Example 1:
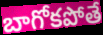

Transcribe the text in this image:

బాగోకపోతే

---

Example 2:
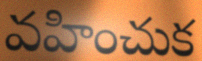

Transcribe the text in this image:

వహించుక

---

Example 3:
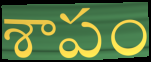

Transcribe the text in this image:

శాపం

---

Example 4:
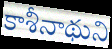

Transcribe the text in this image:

కాశీనాథుని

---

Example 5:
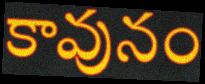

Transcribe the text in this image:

కావునం